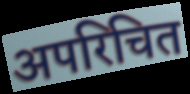
अपरिचित